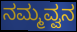
ನಮ್ಮವ್ವನ